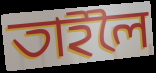
তাইলৈ